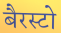
बैरस्टो